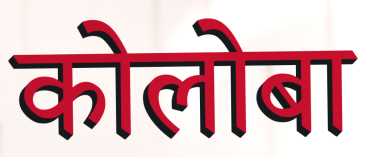
कोलोबा